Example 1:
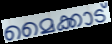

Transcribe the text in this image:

മൈക്കാട്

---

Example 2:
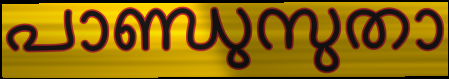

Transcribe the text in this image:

പാണ്ഡുസുതാ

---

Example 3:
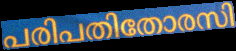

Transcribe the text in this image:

പരിപതിതോരസി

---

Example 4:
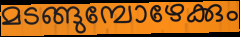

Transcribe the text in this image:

മടങ്ങുമ്പോഴേക്കും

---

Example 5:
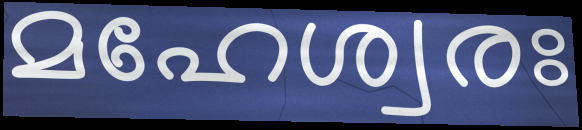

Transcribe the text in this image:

മഹേശ്വരഃ